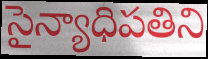
సైన్యాధిపతిని